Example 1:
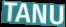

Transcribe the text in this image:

TANU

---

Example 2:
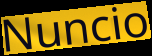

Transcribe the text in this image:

Nuncio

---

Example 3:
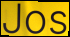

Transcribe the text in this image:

Jos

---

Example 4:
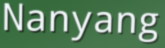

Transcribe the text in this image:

Nanyang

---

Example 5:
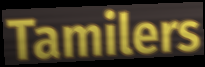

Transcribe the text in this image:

Tamilers